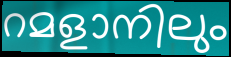
റമളാനിലും